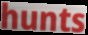
hunts